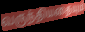
வருந்தியதையும்